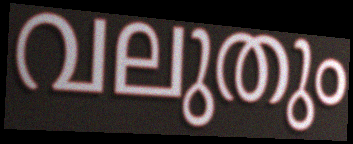
വലുതും